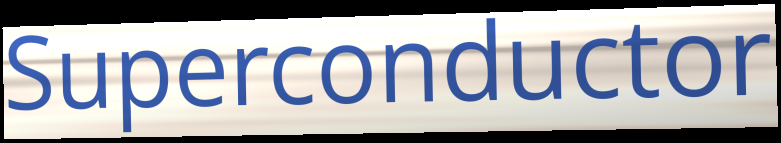
Superconductor